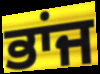
ਭਾਂਜ